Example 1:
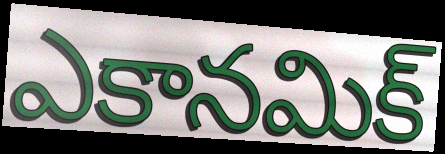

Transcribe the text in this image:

ఎకానమిక్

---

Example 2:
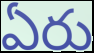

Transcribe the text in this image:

ఏరు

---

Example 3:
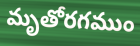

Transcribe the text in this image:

మృతోరగముం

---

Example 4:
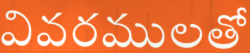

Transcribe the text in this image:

వివరములతో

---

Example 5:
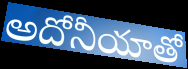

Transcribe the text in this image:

అదోనీయాతో